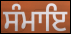
ਸੰਮਾਇ